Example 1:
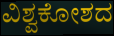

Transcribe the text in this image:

ವಿಶ್ವಕೋಶದ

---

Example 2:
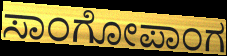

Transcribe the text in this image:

ಸಾಂಗೋಪಾಂಗ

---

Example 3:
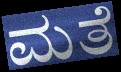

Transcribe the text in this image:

ಮತೆ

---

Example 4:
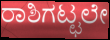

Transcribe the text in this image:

ರಾಶಿಗಟ್ಟಲೇ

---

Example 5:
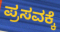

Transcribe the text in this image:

ಪ್ರಸವಕ್ಕೆ